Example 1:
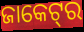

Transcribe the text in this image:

ଜାକେଟ୍‌ର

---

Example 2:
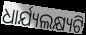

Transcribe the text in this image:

ଧାର୍ଯ୍ୟଲକ୍ଷ୍ୟଟି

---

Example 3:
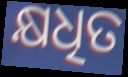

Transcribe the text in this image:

କ୍ଷଧିତ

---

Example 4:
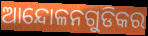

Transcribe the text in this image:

ଆନ୍ଦୋଳନଗୁଡିକର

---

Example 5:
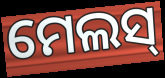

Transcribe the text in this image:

ମେଲସ୍